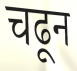
चढून